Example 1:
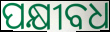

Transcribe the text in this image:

ପକ୍ଷୀବଧ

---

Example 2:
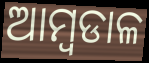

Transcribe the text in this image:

ଆମ୍ବଡାଳ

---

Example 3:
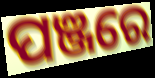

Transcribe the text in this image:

ପଞ୍ଜରେ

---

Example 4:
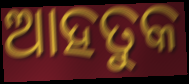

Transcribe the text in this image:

ଆହତୁକ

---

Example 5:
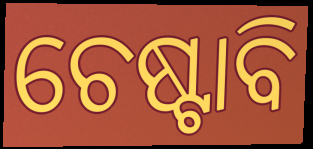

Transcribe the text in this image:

ଚେଷ୍ଟାବି